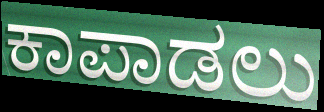
ಕಾಪಾಡಲು